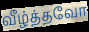
வீழ்த்தவோ